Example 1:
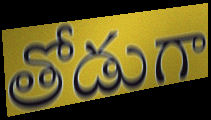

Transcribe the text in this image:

తోడుగా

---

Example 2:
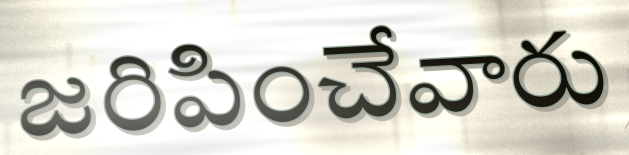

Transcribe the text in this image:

జరిపించేవారు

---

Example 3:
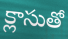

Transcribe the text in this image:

క్లాసుతో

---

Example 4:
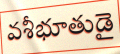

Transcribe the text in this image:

వశీభూతుడై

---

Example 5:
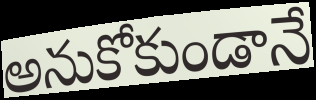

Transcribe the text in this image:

అనుకోకుండానే